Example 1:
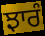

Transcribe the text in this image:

ਝਾਰੰ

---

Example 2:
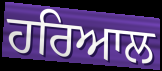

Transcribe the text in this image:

ਹਰਿਆਲ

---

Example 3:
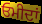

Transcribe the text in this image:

ਓਮੀਦਾਂ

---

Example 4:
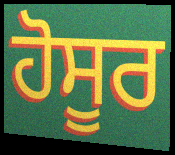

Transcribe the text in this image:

ਹੋਸੂਰ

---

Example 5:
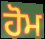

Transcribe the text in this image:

ਹੋਮ